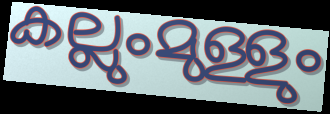
കല്ലുംമുള്ളും